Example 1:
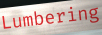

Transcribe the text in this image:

Lumbering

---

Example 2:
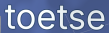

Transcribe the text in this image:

toetse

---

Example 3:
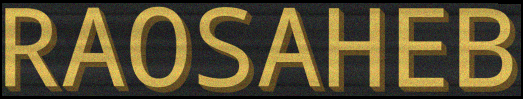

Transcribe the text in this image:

RAOSAHEB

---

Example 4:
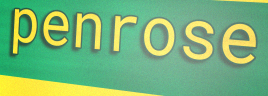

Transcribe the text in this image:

penrose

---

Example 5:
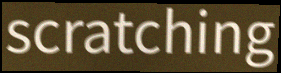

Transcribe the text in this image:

scratching